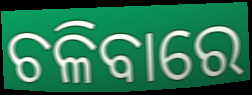
ଚଳିବାରେ